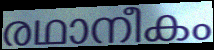
രഥാനീകം